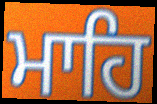
ਮਾਹਿ